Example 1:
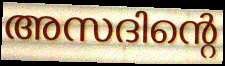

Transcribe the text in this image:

അസദിന്റെ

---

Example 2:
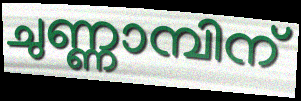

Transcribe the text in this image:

ചുണ്ണാമ്പിന്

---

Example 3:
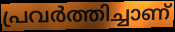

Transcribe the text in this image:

പ്രവർത്തിച്ചാണ്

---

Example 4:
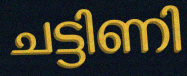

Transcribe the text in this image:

ചട്ടിണി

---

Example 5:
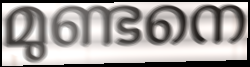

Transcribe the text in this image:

മുണ്ടനെ